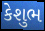
કેશુભ